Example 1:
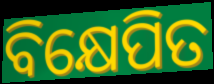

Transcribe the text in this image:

ବିକ୍ଷେପିତ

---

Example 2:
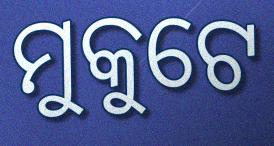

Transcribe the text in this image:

ମୁକୁଟେ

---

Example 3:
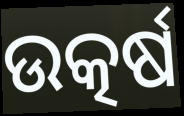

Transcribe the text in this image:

ଉତ୍କର୍ଷ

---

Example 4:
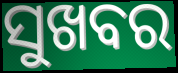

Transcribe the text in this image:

ସୁଖବର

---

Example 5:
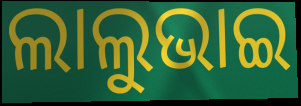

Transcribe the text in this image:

ଲାଲୁଭାଇ